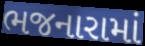
ભજનારામાં